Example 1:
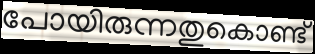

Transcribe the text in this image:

പോയിരുന്നതുകൊണ്ട്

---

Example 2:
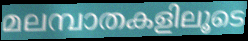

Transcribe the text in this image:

മലമ്പാതകളിലൂടെ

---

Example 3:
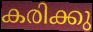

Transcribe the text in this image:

കരിക്കു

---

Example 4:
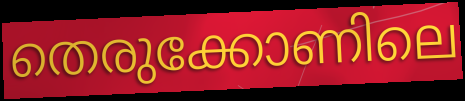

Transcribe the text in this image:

തെരുക്കോണിലെ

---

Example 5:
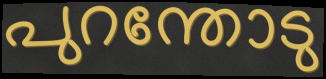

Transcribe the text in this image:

പുറന്തോടു